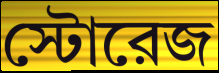
স্টোরেজ